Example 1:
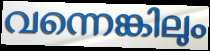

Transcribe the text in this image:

വന്നെങ്കിലും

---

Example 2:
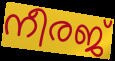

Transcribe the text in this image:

നീരജ്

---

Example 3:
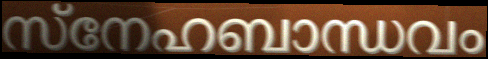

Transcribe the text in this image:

സ്നേഹബാന്ധവം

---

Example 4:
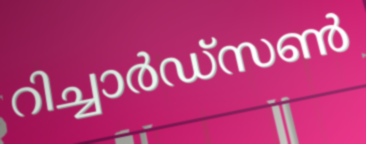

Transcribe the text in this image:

റിച്ചാർഡ്സൺ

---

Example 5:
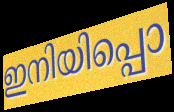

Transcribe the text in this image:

ഇനിയിപ്പൊ